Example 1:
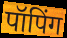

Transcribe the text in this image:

पॉपिंग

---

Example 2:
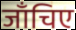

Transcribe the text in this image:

जाँचिए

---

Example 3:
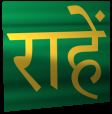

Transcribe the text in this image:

राहें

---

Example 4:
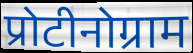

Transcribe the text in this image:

प्रोटीनोग्राम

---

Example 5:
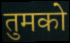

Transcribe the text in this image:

तुमको